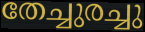
തേച്ചുരച്ചു